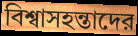
বিশ্বাসহন্তাদের